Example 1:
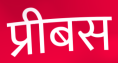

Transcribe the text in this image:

प्रीबस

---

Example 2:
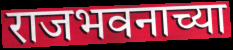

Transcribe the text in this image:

राजभवनाच्या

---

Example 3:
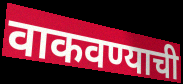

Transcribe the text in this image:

वाकवण्याची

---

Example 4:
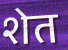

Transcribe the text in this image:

शेत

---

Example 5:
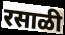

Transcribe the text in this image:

रसाळी